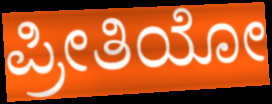
ಪ್ರೀತಿಯೋ